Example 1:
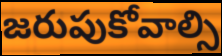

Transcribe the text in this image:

జరుపుకోవాల్సి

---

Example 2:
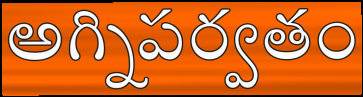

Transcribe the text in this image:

అగ్నిపర్వతం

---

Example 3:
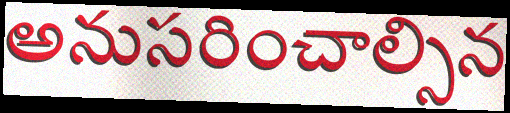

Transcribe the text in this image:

అనుసరించాల్సిన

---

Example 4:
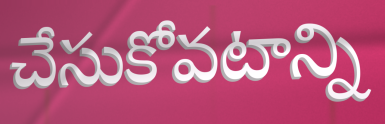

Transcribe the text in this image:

చేసుకోవటాన్ని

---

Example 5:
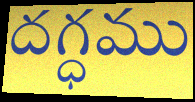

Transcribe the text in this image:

దగ్ధము